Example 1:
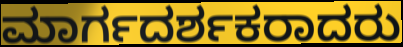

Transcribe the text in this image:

ಮಾರ್ಗದರ್ಶಕರಾದರು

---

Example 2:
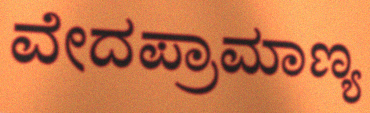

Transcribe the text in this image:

ವೇದಪ್ರಾಮಾಣ್ಯ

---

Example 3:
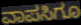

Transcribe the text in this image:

ವಾಪಸಿಗೂ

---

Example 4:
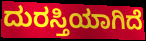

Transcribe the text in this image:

ದುರಸ್ತಿಯಾಗಿದೆ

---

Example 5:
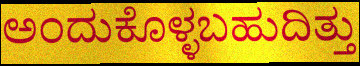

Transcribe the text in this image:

ಅಂದುಕೊಳ್ಳಬಹುದಿತ್ತು